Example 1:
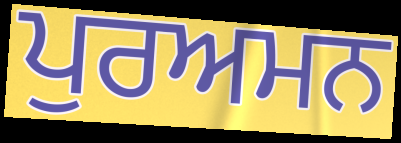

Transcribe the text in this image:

ਪੁਰਅਮਨ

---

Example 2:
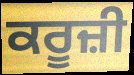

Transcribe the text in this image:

ਕਰੂਜ਼ੀ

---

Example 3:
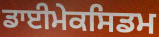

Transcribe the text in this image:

ਡਾਈਮੇਕਸਿਡਮ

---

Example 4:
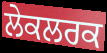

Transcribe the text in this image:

ਲੇਕਲਰਕ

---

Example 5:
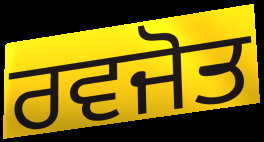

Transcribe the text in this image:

ਰਵਜੋਤ